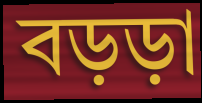
বড়ড়া